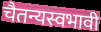
चैतन्यस्वभावी